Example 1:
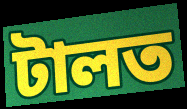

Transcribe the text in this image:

টালত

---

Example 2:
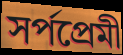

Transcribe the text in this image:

সর্পপ্রেমী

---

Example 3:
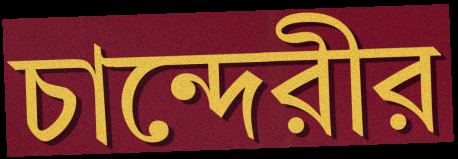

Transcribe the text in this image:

চান্দেরীর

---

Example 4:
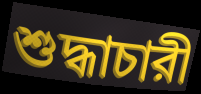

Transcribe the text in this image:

শুদ্ধাচারী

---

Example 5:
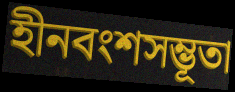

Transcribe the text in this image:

হীনবংশসম্ভূতা